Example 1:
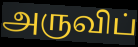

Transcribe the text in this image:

அருவிப்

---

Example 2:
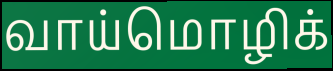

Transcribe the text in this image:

வாய்மொழிக்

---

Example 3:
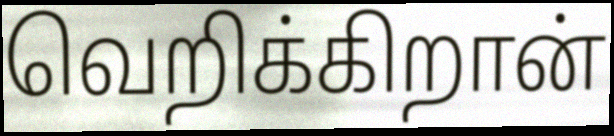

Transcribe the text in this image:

வெறிக்கிறான்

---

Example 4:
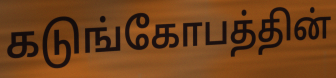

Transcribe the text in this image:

கடுங்கோபத்தின்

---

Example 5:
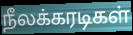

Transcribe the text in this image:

நீலக்கரடிகள்